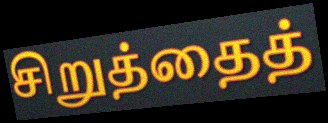
சிறுத்தைத்